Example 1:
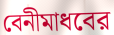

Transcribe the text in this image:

বেনীমাধবের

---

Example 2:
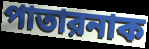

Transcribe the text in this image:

পাতারনাক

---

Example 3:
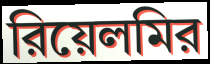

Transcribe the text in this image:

রিয়েলমির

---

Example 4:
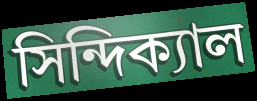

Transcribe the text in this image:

সিন্দিক্যাল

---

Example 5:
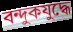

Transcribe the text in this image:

বন্দুকযুদ্ধে